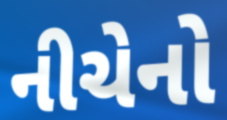
નીચેનો